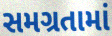
સમગ્રતામાં